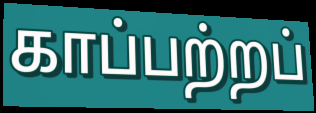
காப்பற்றப்